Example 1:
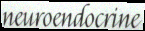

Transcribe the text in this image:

neuroendocrine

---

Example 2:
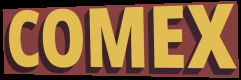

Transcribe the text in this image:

COMEX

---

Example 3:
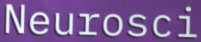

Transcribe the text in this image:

Neurosci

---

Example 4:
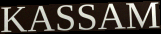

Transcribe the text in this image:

KASSAM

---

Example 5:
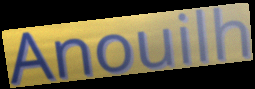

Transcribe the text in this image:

Anouilh